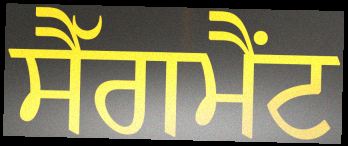
ਸੈੱਗਮੈਂਟ